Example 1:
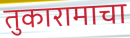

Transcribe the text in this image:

तुकारामाचा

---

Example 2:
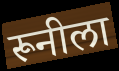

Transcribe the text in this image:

रूनीला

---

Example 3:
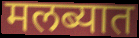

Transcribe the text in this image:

मलब्यात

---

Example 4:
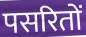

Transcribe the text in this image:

पसरितों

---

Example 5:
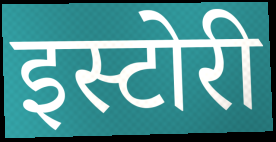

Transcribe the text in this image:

इस्टोरी